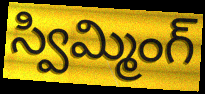
స్విమ్మింగ్